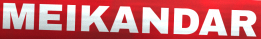
MEIKANDAR